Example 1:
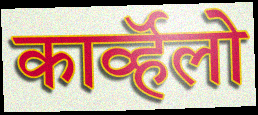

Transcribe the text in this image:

कार्व्हॅलो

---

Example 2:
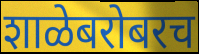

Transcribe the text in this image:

शाळेबरोबरच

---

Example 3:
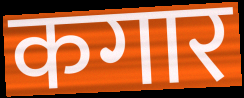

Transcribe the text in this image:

कगार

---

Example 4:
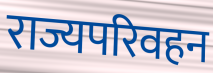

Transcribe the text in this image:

राज्यपरिवहन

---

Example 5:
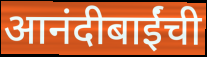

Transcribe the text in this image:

आनंदीबाईंची